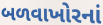
બળવાખોરનાં